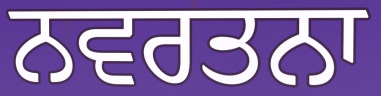
ਨਵਰਤਨਾ